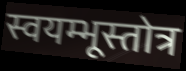
स्वयम्भूस्तोत्र